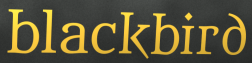
blackbird